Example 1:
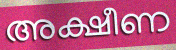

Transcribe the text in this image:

അക്ഷീണ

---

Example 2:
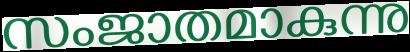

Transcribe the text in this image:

സംജാതമാകുന്നു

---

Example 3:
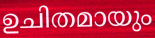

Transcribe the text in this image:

ഉചിതമായും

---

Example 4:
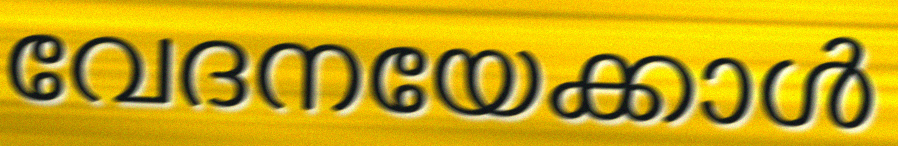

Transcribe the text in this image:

വേദനയേക്കാൾ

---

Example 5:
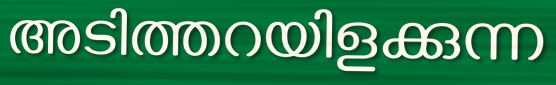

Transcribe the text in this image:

അടിത്തറയിളക്കുന്ന